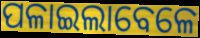
ପଳାଇଲାବେଳେ